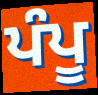
ਪੰਪੂ